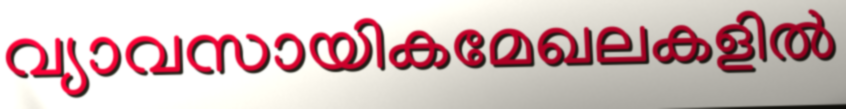
വ്യാവസായികമേഖലകളിൽ